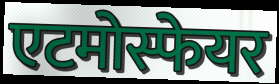
एटमोस्फेयर